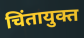
चिंतायुक्त